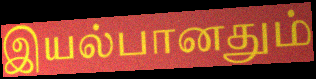
இயல்பானதும்